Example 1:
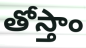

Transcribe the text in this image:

తోస్తాం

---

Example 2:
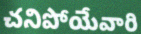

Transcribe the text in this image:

చనిపోయేవారి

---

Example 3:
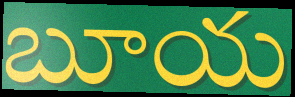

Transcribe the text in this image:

బూయ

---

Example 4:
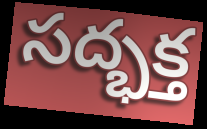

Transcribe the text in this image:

సద్భక్త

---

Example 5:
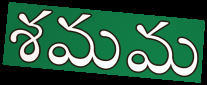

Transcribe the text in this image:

శమమ